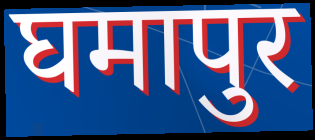
घमापुर